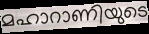
മഹാറാണിയുടെ